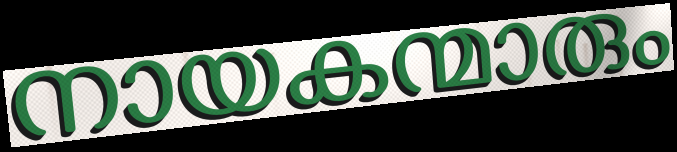
നായകന്മാരും